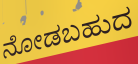
ನೋಡಬಹುದ